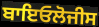
ਬਾਇਓਲੋਜੀਸ